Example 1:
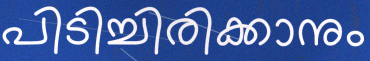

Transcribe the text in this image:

പിടിച്ചിരിക്കാനും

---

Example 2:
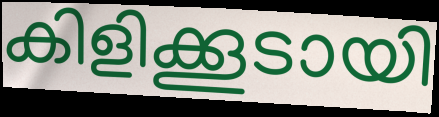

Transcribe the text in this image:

കിളിക്കൂടായി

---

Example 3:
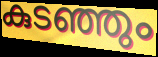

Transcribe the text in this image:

കുടഞ്ഞും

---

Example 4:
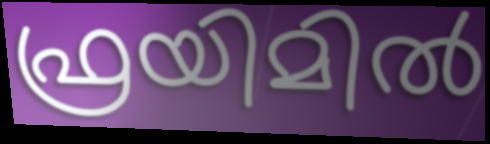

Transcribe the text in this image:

ഫ്രയിമിൽ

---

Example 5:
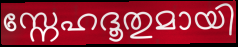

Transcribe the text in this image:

സ്നേഹദൂതുമായി